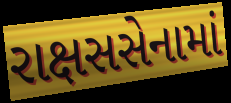
રાક્ષસસેનામાં